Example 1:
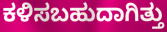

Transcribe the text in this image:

ಕಳಿಸಬಹುದಾಗಿತ್ತು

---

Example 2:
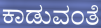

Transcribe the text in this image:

ಕಾಡುವಂತೆ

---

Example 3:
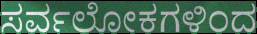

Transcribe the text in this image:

ಸರ್ವಲೋಕಗಳಿಂದ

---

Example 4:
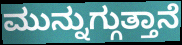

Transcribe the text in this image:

ಮುನ್ನುಗ್ಗುತ್ತಾನೆ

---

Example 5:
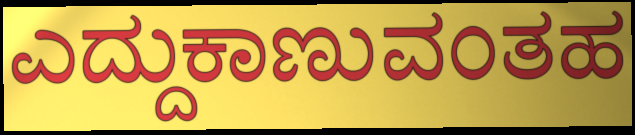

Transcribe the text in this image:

ಎದ್ದುಕಾಣುವಂತಹ